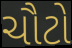
ચૌટો